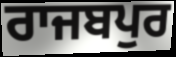
ਰਾਜਬਪੁਰ